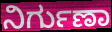
ನಿರ್ಗುಣಾ